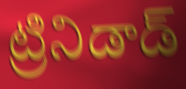
ట్రినిడాడ్